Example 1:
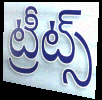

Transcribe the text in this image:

ట్రీట్స్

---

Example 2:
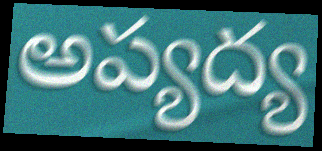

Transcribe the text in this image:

అప్యద్య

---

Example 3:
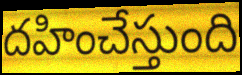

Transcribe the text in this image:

దహించేస్తుంది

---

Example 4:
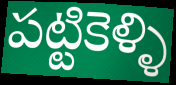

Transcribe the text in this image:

పట్టికెళ్ళి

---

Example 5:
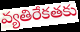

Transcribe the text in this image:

వ్యతిరేకతకు